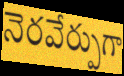
నెరవేర్పుగా